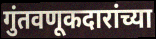
गुंतवणूकदारांच्या